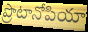
ప్రొటానోపియా